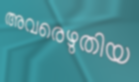
അവരെഴുതിയ